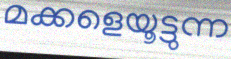
മക്കളെയൂട്ടുന്ന